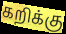
கறிக்கு